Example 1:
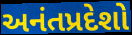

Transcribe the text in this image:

અનંતપ્રદેશો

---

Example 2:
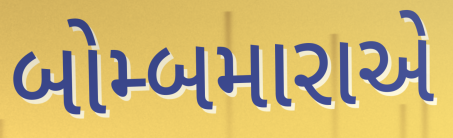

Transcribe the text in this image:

બોમ્બમારાએ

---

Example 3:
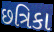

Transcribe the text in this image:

છત્રિકા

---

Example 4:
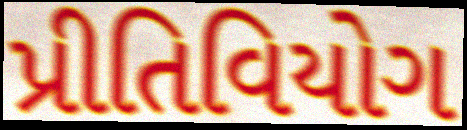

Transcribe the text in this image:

પ્રીતિવિયોગ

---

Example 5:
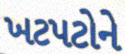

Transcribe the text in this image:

ખટપટોને